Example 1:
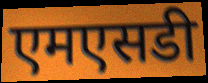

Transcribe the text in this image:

एमएसडी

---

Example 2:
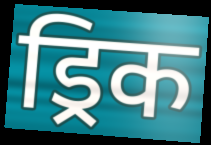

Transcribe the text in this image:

ड्रिक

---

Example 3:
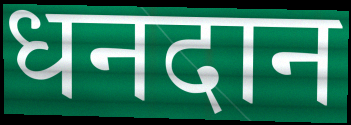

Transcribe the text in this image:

धनदान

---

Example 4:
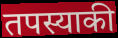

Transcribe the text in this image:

तपस्याकी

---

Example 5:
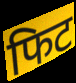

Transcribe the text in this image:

फिट